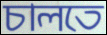
চালতে